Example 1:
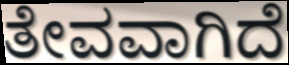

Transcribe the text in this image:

ತೇವವಾಗಿದೆ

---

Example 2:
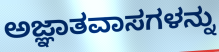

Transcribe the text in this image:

ಅಜ್ಞಾತವಾಸಗಳನ್ನು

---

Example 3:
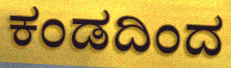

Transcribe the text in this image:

ಕಂಡದಿಂದ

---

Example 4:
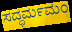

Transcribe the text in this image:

ಸದ್ಧರ್ಮಮಂ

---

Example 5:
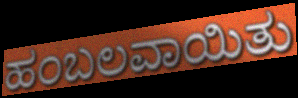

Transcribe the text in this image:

ಹಂಬಲವಾಯಿತು